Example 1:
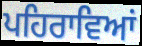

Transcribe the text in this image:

ਪਹਿਰਾਵਿਆਂ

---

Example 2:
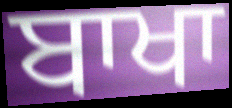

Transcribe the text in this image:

ਬਾਖਾ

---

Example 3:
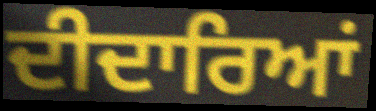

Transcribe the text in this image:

ਦੀਦਾਰਿਆਂ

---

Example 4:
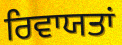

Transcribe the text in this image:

ਰਿਵਾਯਤਾਂ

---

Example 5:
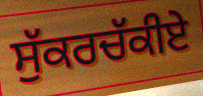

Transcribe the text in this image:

ਸੁੱਕਰਚੱਕੀਏ